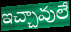
ఇచ్చావులే